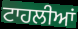
ਟਾਹਲੀਆਂ